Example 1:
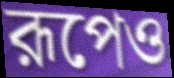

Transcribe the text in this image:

রূপেও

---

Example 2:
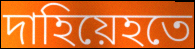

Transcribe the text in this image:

দাহিয়েহতে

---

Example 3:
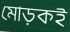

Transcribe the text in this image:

মোড়কই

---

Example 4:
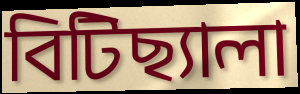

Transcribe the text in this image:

বিটিছ্যালা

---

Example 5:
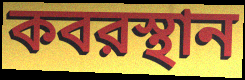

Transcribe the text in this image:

কবরস্থান